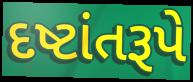
દષ્ટાંતરૂપે